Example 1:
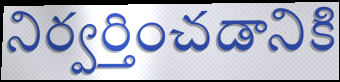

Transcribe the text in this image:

నిర్వర్తించడానికి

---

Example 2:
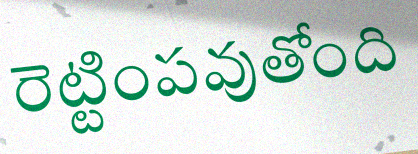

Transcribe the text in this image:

రెట్టింపవుతోంది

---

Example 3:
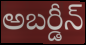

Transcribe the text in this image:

అబర్డీన్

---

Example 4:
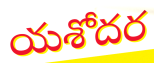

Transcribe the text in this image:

యశోదర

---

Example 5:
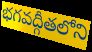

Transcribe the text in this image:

భగవద్గీతలోని